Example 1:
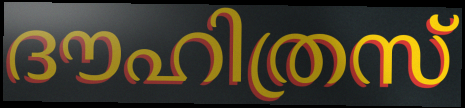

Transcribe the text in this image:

ദൗഹിത്രസ്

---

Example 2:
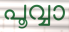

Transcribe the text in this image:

പൂവ്വാ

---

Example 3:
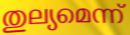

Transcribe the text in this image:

തുല്യമെന്ന്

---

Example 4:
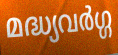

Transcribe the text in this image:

മദ്ധ്യവർഗ്ഗ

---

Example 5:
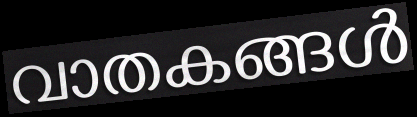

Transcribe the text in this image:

വാതകങ്ങൾ